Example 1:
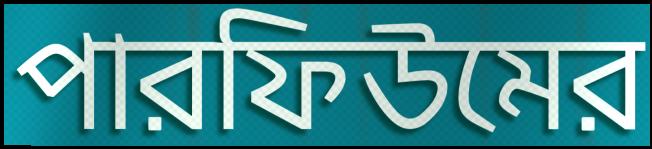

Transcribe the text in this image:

পারফিউমের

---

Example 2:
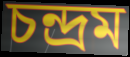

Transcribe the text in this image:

চন্দ্রম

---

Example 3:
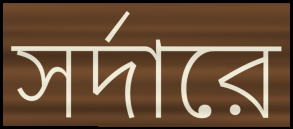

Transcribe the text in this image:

সর্দারে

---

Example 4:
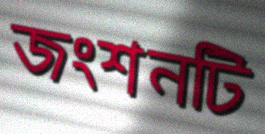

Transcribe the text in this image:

জংশনটি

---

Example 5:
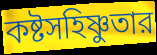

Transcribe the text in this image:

কষ্টসহিষ্ণুতার